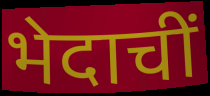
भेदाचीं